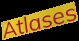
Atlases